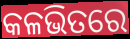
କଳଭିତରେ